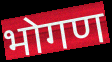
भोगण